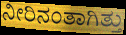
ನೀರಿನಂತಾಗಿತ್ತು